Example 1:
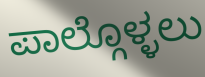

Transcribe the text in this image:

ಪಾಲ್ಗೊಳ್ಳಲು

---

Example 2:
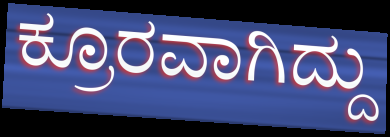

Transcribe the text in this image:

ಕ್ರೂರವಾಗಿದ್ದು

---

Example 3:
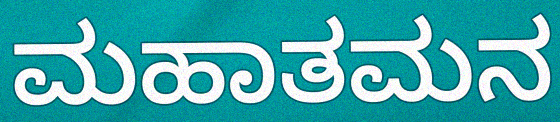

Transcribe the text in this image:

ಮಹಾತಮನ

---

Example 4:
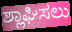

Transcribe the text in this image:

ಶ್ಲಾಘಿಸಲು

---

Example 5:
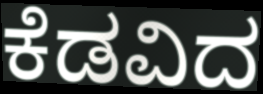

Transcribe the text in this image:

ಕೆಡವಿದ